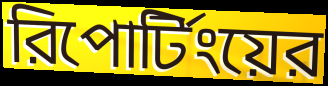
রিপোর্টিংয়ের